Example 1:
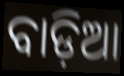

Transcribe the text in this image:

ବାଡ଼ିଆ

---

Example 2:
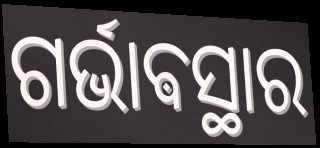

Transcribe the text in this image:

ଗର୍ଭାଵସ୍ଥାର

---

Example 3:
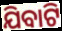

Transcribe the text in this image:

ଯିବାଟି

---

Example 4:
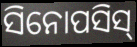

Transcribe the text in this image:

ସିନୋପସିସ୍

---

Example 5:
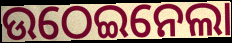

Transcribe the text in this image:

ଉଠେଇନେଲା